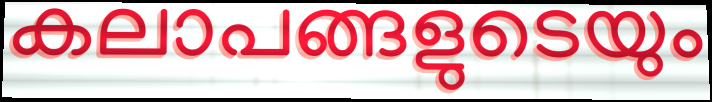
കലാപങ്ങളുടെയും